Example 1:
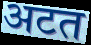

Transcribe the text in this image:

अटत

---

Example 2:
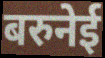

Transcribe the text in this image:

बरुनेई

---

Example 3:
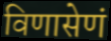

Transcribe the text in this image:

विणासेणं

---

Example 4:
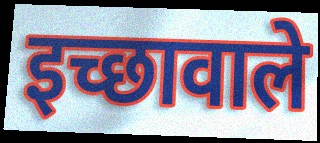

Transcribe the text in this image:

इच्छावाले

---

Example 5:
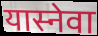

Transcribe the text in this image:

यास्नेवा